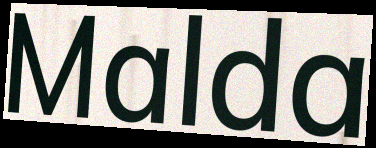
Malda